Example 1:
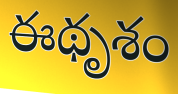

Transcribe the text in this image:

ఈథృశం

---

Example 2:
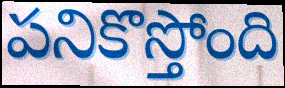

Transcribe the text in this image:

పనికొస్తోంది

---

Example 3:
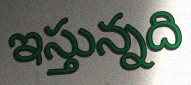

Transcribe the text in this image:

ఇస్తున్నది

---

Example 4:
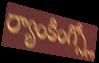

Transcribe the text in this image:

ర్యాంకింగ్స్లో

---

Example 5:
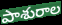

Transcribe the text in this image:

పాశురాల